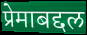
प्रेमाबद्दल